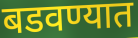
बडवण्यात